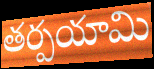
తర్పయామి